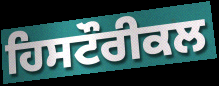
ਹਿਸਟੌਰੀਕਲ